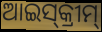
ଆଇସ୍‌କ୍ରୀମ୍